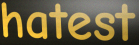
hatest